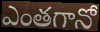
ఎంతగానో